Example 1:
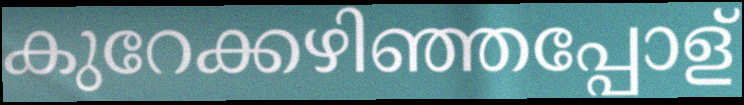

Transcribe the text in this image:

കുറേക്കഴിഞ്ഞപ്പോള്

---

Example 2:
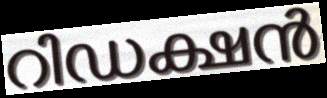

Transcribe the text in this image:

റിഡക്ഷൻ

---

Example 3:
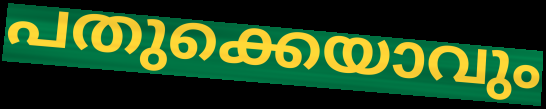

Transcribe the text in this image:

പതുക്കെയാവും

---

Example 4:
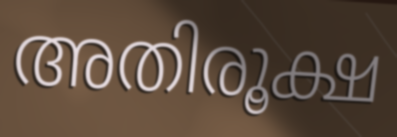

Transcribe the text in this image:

അതിരൂക്ഷ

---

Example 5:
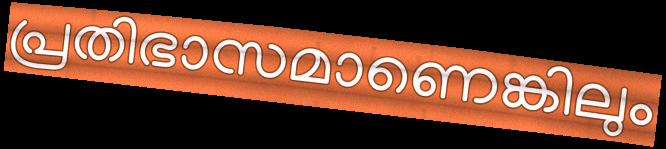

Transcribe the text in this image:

പ്രതിഭാസമാണെങ്കിലും